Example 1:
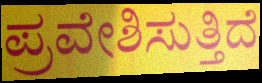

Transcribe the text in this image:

ಪ್ರವೇಶಿಸುತ್ತಿದೆ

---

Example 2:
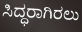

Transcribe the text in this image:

ಸಿದ್ಧರಾಗಿರಲು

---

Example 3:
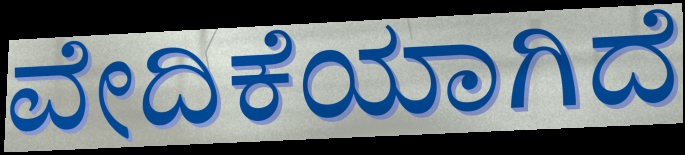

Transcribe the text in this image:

ವೇದಿಕೆಯಾಗಿದೆ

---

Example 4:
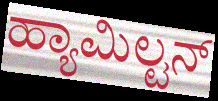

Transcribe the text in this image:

ಹ್ಯಾಮಿಲ್ಟನ್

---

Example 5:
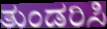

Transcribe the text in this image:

ತುಂಡರಿಸಿ